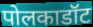
पोलकाडॉट